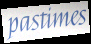
pastimes